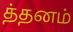
த்தனம்